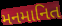
મનમાનિત